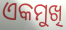
ଏକମୁଖି